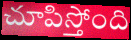
చూపిస్తోంది